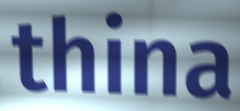
thina